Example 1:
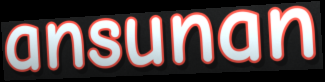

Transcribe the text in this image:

ansunan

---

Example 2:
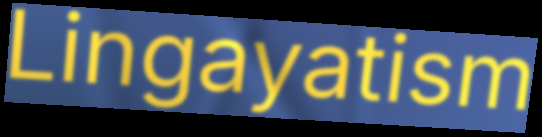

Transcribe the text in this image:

Lingayatism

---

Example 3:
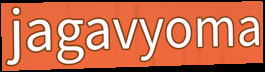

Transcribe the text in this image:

jagavyoma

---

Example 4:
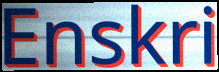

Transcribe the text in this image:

Enskri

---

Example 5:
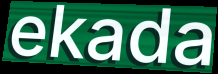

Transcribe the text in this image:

ekada